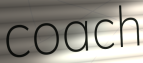
coach